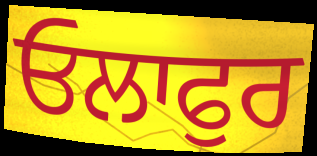
ਓਲਾਫੁਰ